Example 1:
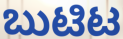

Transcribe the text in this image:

ಬುಟಿಟ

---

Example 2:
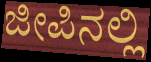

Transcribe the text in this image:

ಜೀಪಿನಲ್ಲಿ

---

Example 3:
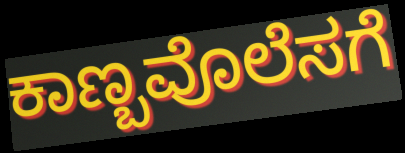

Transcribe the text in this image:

ಕಾಣ್ಬವೊಲೆಸಗೆ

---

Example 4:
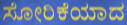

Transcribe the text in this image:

ಸೋರಿಕೆಯಾದ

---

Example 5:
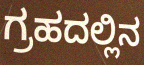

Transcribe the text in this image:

ಗ್ರಹದಲ್ಲಿನ